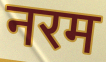
नरम